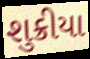
શુક્રીયા